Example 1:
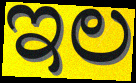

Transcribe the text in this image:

ಇಲ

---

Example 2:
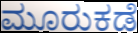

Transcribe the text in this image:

ಮೂರುಕಡೆ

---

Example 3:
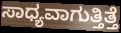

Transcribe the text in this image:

ಸಾಧ್ಯವಾಗುತ್ತಿತ್ತೆ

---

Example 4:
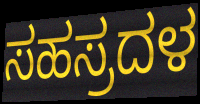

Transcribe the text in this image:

ಸಹಸ್ರದಳ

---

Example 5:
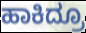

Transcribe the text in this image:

ಹಾಕಿದ್ರೂ